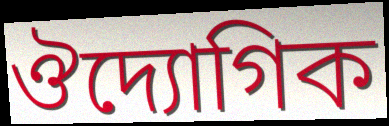
ঔদ্যোগিক